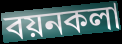
বয়নকলা